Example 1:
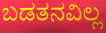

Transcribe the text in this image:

ಬಡತನವಿಲ್ಲ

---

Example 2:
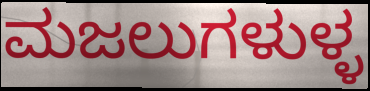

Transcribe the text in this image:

ಮಜಲುಗಳುಳ್ಳ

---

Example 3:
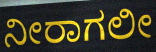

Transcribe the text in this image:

ನೀರಾಗಲೀ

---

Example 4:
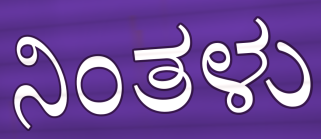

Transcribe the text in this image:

ನಿಂತಳು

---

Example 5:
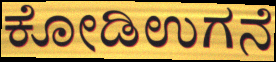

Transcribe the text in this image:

ಕೋಡಿಉಗನೆ